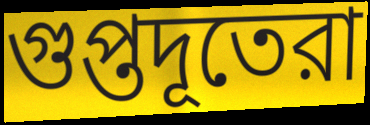
গুপ্তদূতেরা